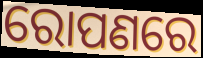
ରୋପଣରେ